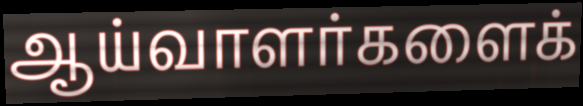
ஆய்வாளர்களைக்